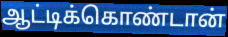
ஆட்டிக்கொண்டான்